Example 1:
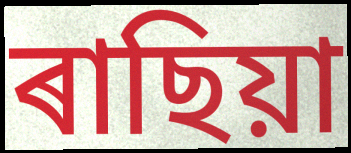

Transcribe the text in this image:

ৰাছিয়া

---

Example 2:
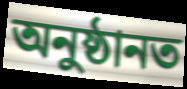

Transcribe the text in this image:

অনুষ্ঠানত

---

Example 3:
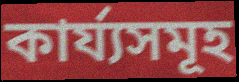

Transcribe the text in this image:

কাৰ্য্যসমূহ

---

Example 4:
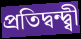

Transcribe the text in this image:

প্ৰতিদ্বন্দ্ব্বী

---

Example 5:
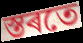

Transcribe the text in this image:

স্তৰতে